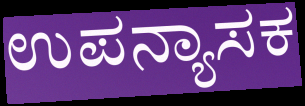
ಉಪನ್ಯಾಸಕ